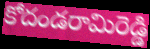
కోదండరామిరెడ్డి